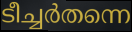
ടീച്ചർതന്നെ